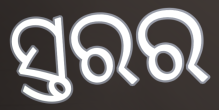
ସ୍ତରର